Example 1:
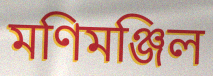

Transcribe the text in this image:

মণিমঞ্জিল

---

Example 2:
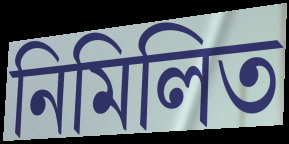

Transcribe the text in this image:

নিমিলিত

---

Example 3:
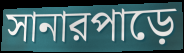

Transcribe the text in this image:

সানারপাড়ে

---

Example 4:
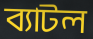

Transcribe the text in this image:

ব্যাটল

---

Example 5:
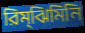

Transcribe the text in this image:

রিম্‌ঝিমিনি